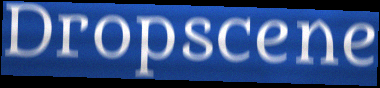
Dropscene